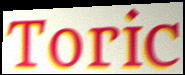
Toric